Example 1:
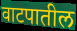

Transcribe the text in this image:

वाटपातील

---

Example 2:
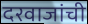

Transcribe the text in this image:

दरवाजांची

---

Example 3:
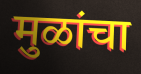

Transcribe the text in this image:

मुळांचा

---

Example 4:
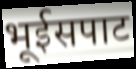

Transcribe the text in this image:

भूईसपाट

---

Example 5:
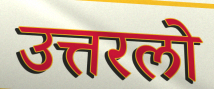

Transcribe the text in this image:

उत्तरलो